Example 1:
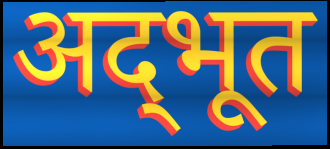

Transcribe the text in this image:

अद्‌भूत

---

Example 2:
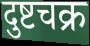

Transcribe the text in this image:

दुष्टचक्र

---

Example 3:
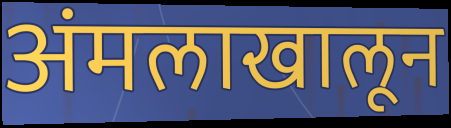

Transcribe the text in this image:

अंमलाखालून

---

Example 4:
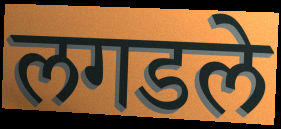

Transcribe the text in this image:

लगडले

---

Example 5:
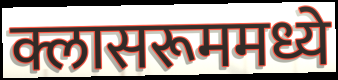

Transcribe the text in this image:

क्लासरूममध्ये